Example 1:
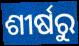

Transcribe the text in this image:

ଶୀର୍ଷରୁ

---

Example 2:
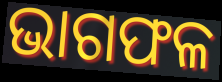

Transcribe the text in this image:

ଭାଗଫଳ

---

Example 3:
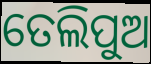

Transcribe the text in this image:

ତେଲିପୁଅ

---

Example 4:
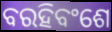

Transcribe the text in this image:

ବରହିବଂଶେ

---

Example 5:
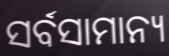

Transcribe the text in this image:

ସର୍ବସାମାନ୍ୟ